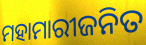
ମହାମାରୀଜନିତ